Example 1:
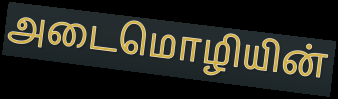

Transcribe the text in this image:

அடைமொழியின்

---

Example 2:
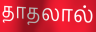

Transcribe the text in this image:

தாதலால்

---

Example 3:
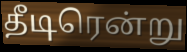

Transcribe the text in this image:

தீடிரென்று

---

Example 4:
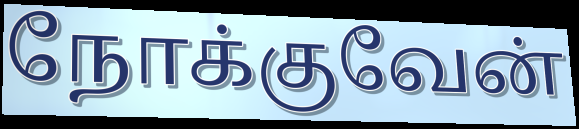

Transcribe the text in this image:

நோக்குவேன்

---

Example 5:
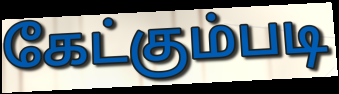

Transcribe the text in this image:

கேட்கும்படி